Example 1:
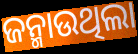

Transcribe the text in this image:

ଜନ୍ମାଉଥିଲା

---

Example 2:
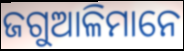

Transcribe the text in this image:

ଜଗୁଆଳିମାନେ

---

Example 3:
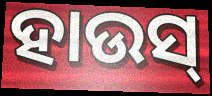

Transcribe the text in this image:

ହାଉସ୍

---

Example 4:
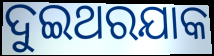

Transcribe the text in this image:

ଦୁଇଥରଯାକ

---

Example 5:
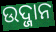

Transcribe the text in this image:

ଉଦ୍ଜାନ